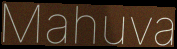
Mahuva